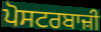
ਪੋਸਟਰਬਾਜ਼ੀ